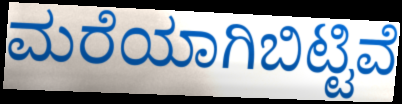
ಮರೆಯಾಗಿಬಿಟ್ಟಿವೆ